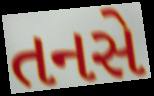
તનસે